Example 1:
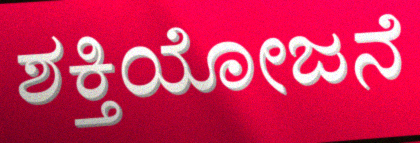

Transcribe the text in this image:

ಶಕ್ತಿಯೋಜನೆ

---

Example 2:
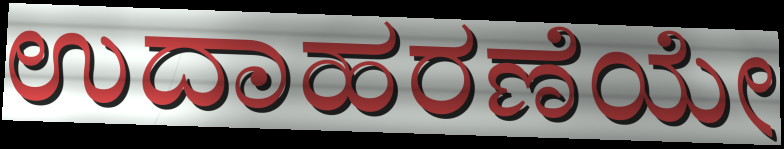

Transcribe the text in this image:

ಉದಾಹರಣೆಯೇ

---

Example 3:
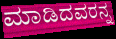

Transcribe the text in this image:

ಮಾಡಿದವರನ್ನ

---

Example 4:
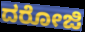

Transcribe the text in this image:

ದರೋಜಿ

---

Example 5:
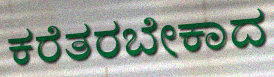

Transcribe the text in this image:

ಕರೆತರಬೇಕಾದ